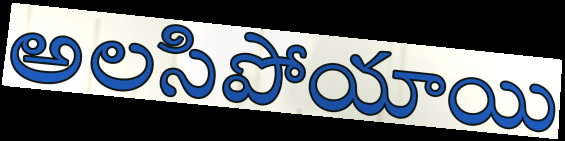
అలసిపోయాయి